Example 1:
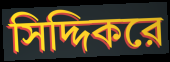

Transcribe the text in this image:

সিদ্দিকরে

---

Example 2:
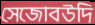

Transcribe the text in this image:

সেজোবউদি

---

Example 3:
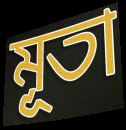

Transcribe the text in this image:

মূতা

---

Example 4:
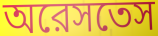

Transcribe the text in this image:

অরেসতেস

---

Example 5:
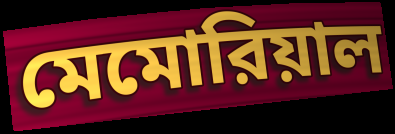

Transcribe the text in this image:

মেমোরিয়াল